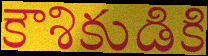
కౌశికుడికి